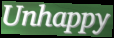
Unhappy